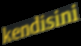
kendisini